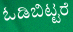
ಓಡಿಬಿಟ್ಟರೆ